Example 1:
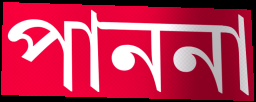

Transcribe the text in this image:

পাননা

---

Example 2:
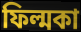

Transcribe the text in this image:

ফিল্মকা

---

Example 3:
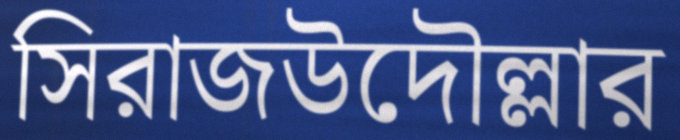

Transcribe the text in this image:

সিরাজউদৌল্লার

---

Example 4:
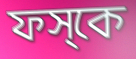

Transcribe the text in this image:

ফস্‌কে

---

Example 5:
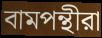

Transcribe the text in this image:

বামপন্থীরা